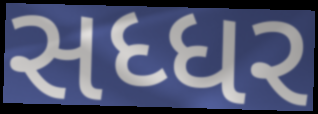
સધ્ધર